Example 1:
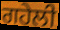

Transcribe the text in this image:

ਗਹੇਲੀ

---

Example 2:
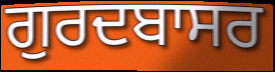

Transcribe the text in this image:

ਗੁਰਦਬਾਸਰ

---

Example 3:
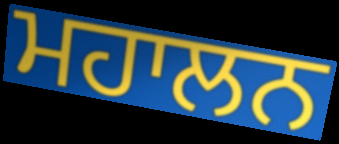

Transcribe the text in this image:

ਮਹਾਲਨ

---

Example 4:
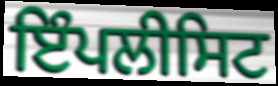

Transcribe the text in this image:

ਇੰਪਲੀਸਿਟ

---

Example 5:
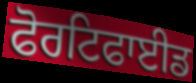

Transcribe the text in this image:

ਫੋਰਟਿਫਾਈਡ